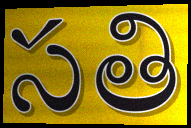
సతి